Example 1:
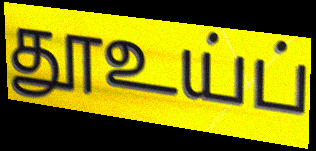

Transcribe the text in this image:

தூஉய்ப்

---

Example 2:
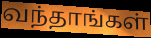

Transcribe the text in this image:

வந்தாங்கள்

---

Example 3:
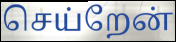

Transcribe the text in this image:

செய்றேன்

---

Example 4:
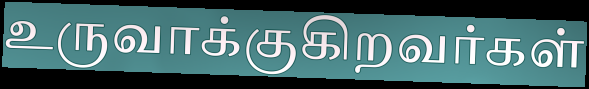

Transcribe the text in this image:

உருவாக்குகிறவர்கள்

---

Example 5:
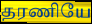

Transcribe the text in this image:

தரணியே